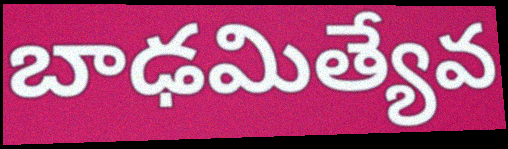
బాఢమిత్యేవ